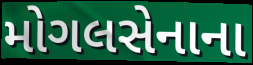
મોગલસેનાના